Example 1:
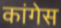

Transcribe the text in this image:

कांगेस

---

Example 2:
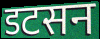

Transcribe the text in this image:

डटसन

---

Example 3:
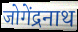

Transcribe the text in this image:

जोगेंद्रनाथ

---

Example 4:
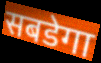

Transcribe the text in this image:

सबडेगा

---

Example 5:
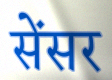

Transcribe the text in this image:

सेंसर